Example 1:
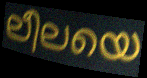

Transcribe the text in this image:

ലീലയെ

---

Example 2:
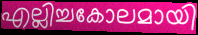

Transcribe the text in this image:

എല്ലിച്ചകോലമായി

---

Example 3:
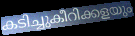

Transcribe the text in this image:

കടിച്ചുകീറിക്കളയും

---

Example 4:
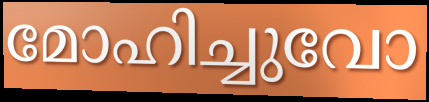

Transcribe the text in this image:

മോഹിച്ചുവോ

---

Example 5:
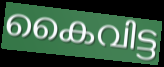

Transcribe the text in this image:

കൈവിട്ട